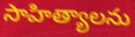
సాహిత్యాలను